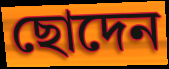
ছোদেন